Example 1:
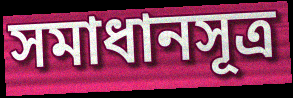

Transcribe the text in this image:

সমাধানসূত্ৰ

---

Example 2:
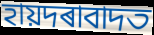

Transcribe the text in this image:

হায়দৰাবাদত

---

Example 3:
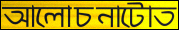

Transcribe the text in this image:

আলোচনাটোত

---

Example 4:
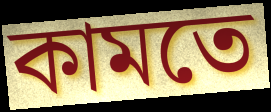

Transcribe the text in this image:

কামতে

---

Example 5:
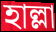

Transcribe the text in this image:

হাল্লা